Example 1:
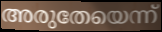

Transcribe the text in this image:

അരുതേയെന്ന്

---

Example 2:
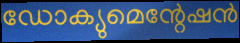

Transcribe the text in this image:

ഡോക്യുമെന്റേഷൻ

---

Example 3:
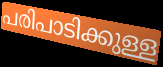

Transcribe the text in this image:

പരിപാടിക്കുള്ള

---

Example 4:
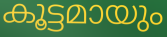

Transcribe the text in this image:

കൂട്ടമായും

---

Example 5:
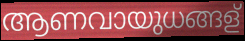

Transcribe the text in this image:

ആണവായുധങ്ങള്